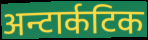
अन्टार्कटिक